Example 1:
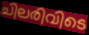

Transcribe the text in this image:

ചിലരിവിടെ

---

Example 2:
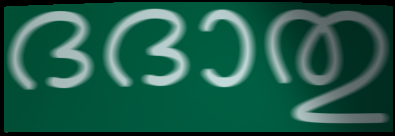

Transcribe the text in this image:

ദദാതു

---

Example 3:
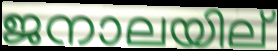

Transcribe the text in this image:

ജനാലയില്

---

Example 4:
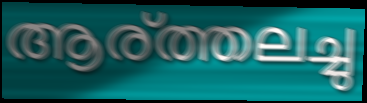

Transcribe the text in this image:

ആര്ത്തലച്ചു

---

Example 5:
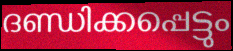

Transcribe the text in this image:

ദണ്ഡിക്കപ്പെട്ടും